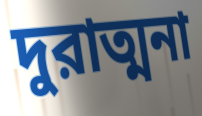
দুরাত্মনা